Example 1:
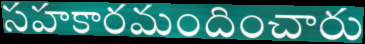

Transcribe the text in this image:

సహకారమందించారు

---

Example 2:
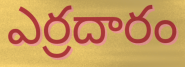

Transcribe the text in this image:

ఎర్రదారం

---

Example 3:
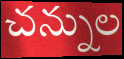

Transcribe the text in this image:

చన్నుల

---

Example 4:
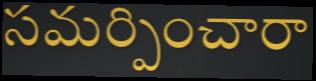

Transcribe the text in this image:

సమర్పించారా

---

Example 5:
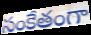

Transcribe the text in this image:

సంకేతంగా